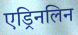
एड्रिनलिन